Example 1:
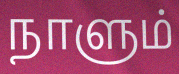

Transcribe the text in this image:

நாளும்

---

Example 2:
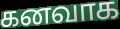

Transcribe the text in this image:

கனவாக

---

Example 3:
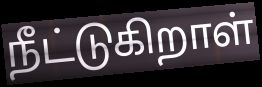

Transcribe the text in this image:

நீட்டுகிறாள்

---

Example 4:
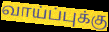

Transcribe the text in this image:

வாய்ப்புக்கு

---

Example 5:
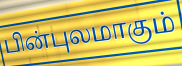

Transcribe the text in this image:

பின்புலமாகும்